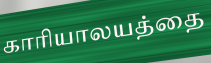
காரியாலயத்தை